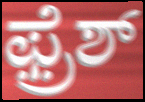
ಫ಼್ರೆಶ್